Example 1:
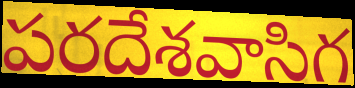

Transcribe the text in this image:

పరదేశవాసిగ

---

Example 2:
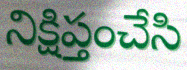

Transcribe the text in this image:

నిక్షిప్తంచేసి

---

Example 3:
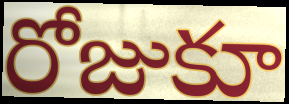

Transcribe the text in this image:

రోజుకూ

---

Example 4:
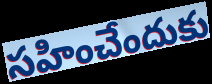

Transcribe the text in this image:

సహించేందుకు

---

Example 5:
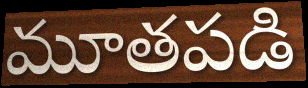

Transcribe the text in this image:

మూతపడి